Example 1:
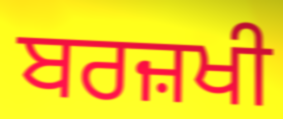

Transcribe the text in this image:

ਬਰਜ਼ਖੀ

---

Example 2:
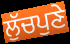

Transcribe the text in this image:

ਲੁੱਚਪੁਣੇ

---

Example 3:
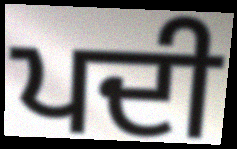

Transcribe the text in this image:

ਪਦੀ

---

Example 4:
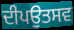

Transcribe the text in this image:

ਦੀਪਉਤਸਵ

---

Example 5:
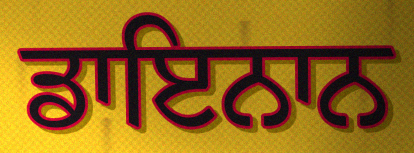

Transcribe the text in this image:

ਡਾਇਨਾਨ